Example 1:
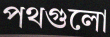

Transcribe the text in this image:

পথগুলো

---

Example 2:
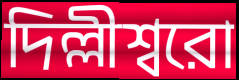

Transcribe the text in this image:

দিল্লীশ্বরো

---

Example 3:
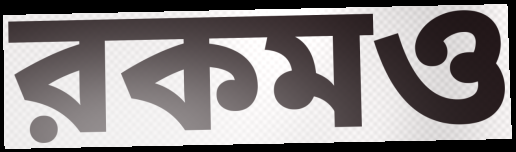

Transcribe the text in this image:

রকমও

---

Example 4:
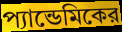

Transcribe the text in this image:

প্যান্ডেমিকের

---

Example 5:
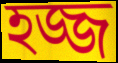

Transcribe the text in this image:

হজ্জ